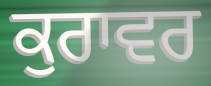
ਕੁਰਾਵਰ